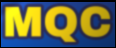
MQC